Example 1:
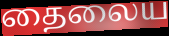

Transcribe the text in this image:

தைலைய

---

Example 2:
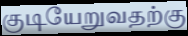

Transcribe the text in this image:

குடியேறுவதற்கு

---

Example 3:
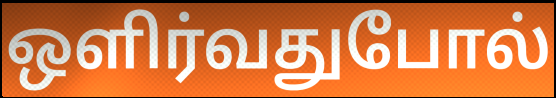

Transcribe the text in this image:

ஒளிர்வதுபோல்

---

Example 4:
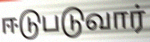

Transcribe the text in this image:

ஈடுபடுவார்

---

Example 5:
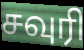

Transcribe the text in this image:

சவுரி